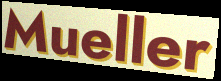
Mueller